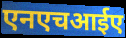
एनएचआईए